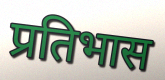
प्रतिभास